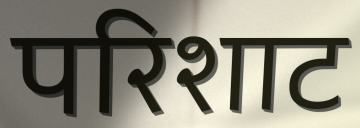
परिशाट